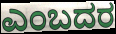
ಎಂಬದರ